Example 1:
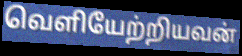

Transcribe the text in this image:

வெளியேற்றியவன்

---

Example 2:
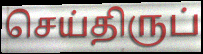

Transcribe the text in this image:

செய்திருப்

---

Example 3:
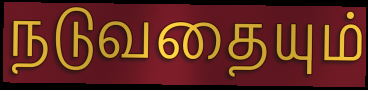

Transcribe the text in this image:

நடுவதையும்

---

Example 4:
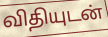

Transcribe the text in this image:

விதியுடன்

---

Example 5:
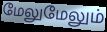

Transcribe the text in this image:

மேலுமேலும்